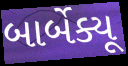
બાર્બેક્યૂ